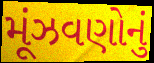
મૂંઝવણોનું